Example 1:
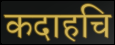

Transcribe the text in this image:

कदाहचि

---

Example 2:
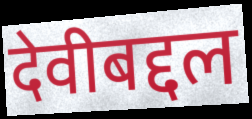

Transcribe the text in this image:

देवीबद्दल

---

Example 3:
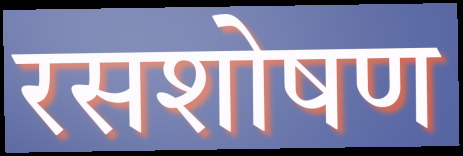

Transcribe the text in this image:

रसशोषण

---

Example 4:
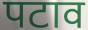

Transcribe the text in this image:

पटाव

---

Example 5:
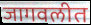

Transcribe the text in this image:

जागवलीत